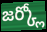
జర్క్లో